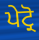
ਪੇਟ੍ਰੋ